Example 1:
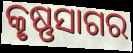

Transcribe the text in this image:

କୃଷ୍ଣସାଗର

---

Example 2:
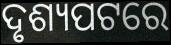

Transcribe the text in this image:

ଦୃଶ୍ୟପଟରେ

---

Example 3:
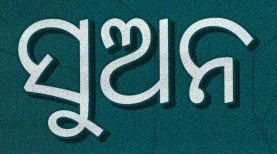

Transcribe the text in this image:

ସୁଅନ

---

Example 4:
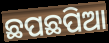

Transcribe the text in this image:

ଛପଛପିଆ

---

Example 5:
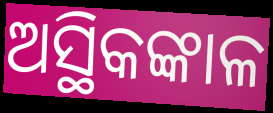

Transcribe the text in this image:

ଅସ୍ଥିକଙ୍କାଳ